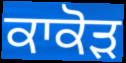
ਕਾਕੋੜ